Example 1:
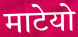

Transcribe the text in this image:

माटेयो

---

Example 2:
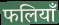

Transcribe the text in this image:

फलियाँ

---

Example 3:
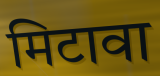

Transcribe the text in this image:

मिटावा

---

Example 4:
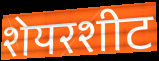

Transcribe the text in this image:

शेयरशीट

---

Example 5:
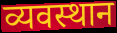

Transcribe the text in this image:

व्यवस्थान